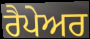
ਰੈਪੇਅਰ